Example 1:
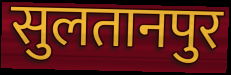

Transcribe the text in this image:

सुलतानपुर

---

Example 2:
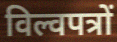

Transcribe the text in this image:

विल्वपत्रों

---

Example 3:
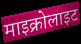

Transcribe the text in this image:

माइक्रोलाइट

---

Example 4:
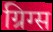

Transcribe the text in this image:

ग्रिग्स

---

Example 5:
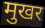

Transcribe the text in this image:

मुखर